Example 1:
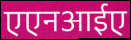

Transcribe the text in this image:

एएनआईए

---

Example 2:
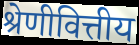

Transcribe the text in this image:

श्रेणीवित्तीय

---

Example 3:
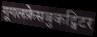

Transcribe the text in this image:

गूगलफ़ेसबुकट्विटर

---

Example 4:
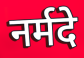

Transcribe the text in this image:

नर्मदे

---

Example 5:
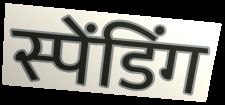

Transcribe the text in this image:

स्पेंडिंग